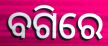
ବଗିରେ